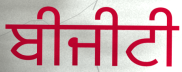
ਬੀਜੀਟੀ